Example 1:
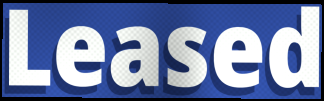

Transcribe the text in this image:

Leased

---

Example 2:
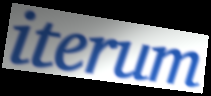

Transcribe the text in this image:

iterum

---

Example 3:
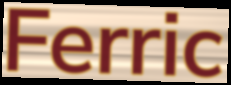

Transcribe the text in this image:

Ferric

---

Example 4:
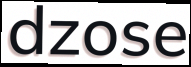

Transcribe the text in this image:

dzose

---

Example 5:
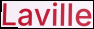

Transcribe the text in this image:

Laville